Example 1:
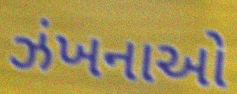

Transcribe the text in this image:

ઝંખનાઓ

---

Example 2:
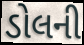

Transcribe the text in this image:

ડોલની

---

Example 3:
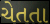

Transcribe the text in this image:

ચેતતા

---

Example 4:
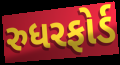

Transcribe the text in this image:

રુધરફોર્ડ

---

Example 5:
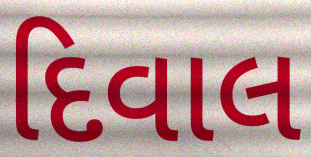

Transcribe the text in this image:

દિવાલ